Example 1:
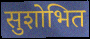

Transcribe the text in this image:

सुशोभित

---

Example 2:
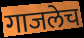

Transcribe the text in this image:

गाजलेच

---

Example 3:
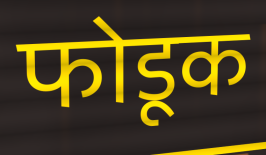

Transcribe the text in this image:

फोडूक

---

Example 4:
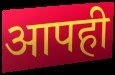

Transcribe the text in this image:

आपही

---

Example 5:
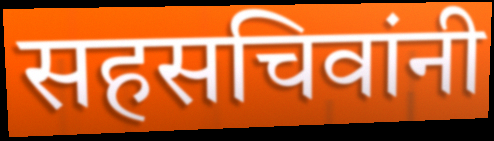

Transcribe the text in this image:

सहसचिवांनी